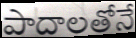
పాదాలతోనే